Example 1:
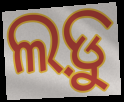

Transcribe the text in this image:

ଲଡ଼ୁ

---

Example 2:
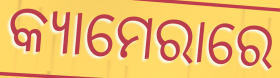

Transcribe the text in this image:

କ୍ୟାମେରାରେ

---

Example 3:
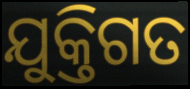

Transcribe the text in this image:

ଯୁକ୍ତିଗତ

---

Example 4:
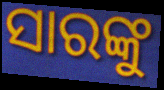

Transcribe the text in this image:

ସାରଙ୍କୁ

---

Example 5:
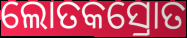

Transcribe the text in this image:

ଲୋତକସ୍ରୋତ